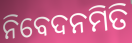
ନିବେଦନମିତି